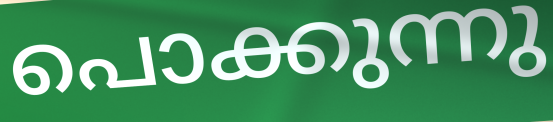
പൊക്കുന്നു